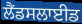
ਲੈਂਡਸਲਾਈਡ